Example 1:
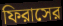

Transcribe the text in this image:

ফিরাসের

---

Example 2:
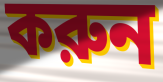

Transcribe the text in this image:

করুন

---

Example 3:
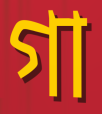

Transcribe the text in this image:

গা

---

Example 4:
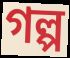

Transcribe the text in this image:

গল্প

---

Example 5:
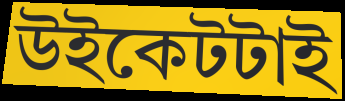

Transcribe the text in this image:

উইকেটটাই